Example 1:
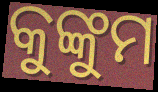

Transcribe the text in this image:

କୁଙ୍କୁମ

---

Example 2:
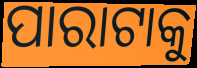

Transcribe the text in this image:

ପାରାଟାକୁ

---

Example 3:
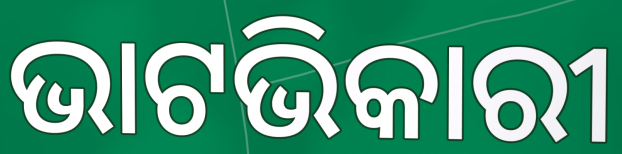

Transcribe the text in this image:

ଭାଟଭିକାରୀ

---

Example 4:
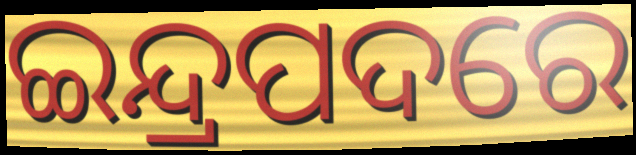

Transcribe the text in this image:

ଇନ୍ଦ୍ରପଦରେ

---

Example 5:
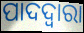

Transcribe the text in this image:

ପାଦଦ୍ଵାରା